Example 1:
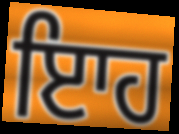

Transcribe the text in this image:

ਇਾਹ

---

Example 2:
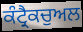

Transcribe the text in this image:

ਕੰਟ੍ਰੈਕਚੁਅਲ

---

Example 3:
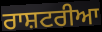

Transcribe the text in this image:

ਰਾਸ਼ਟਰੀਆ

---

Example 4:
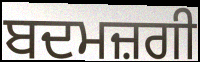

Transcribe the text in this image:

ਬਦਮਜ਼ਗੀ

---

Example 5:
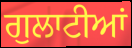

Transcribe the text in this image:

ਗੁਲਾਟੀਆਂ